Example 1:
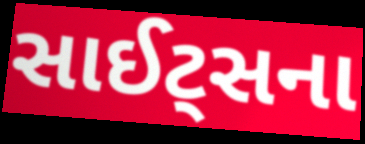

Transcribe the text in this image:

સાઈટ્સના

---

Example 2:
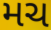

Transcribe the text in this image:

મચ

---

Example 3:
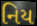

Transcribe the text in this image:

નિય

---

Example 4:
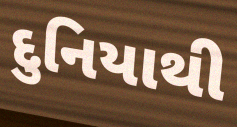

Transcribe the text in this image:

દુનિયાથી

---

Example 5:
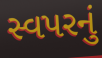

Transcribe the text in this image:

સ્વપરનું